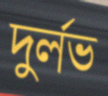
দুর্লভ